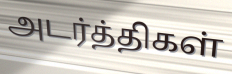
அடர்த்திகள்